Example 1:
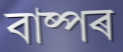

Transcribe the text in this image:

বাষ্পৰ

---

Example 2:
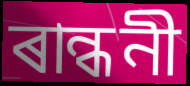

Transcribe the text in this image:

ৰান্ধনী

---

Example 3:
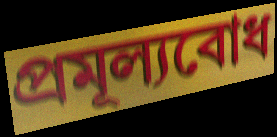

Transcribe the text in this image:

প্ৰমূল্যবোধ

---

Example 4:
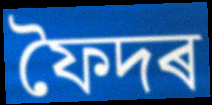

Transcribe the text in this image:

ফৈদৰ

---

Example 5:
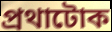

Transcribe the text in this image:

প্ৰথাটোক